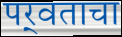
पर्वताचा